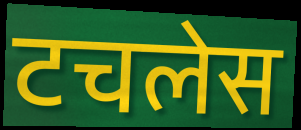
टचलेस